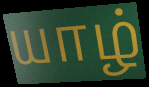
யாழ்